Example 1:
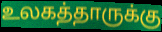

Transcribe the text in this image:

உலகத்தாருக்கு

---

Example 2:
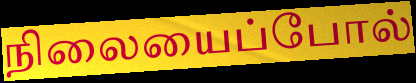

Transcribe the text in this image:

நிலையைப்போல்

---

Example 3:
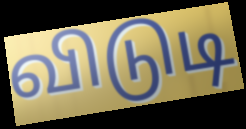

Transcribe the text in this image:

விடுடி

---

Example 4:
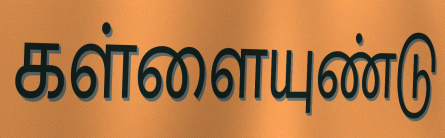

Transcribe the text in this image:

கள்ளையுண்டு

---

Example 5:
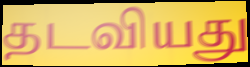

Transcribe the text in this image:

தடவியது